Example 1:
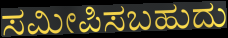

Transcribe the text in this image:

ಸಮೀಪಿಸಬಹುದು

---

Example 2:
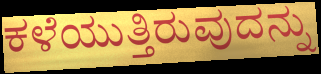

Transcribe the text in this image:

ಕಳೆಯುತ್ತಿರುವುದನ್ನು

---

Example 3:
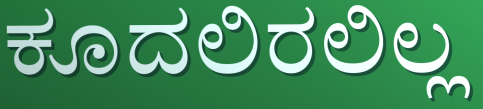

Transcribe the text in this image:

ಕೂದಲಿರಲಿಲ್ಲ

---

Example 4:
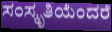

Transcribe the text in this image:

ಸಂಸ್ಕೃತಿಯೆಂದರೆ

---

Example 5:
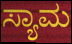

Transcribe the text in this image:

ಸ್ಯಾಮ